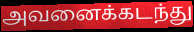
அவனைக்கடந்து